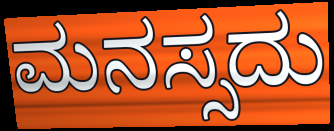
ಮನಸ್ಸದು